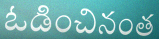
ఓడించినంత